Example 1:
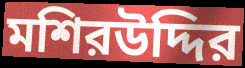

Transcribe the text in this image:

মশিরউদ্দির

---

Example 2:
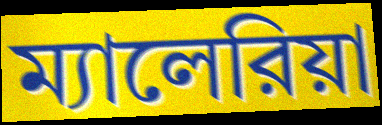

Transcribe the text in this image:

ম্যালেরিয়া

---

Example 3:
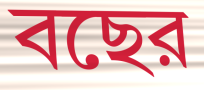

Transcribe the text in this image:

বছের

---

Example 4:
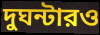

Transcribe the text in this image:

দুঘন্টারও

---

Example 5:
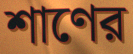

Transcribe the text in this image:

শাণের